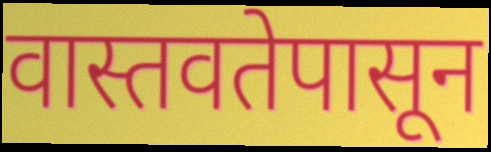
वास्तवतेपासून